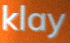
klay